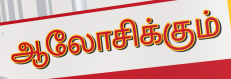
ஆலோசிக்கும்